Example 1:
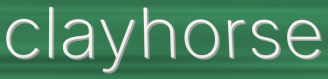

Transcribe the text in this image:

clayhorse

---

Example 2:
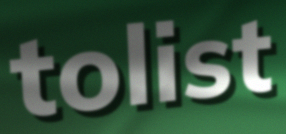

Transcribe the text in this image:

tolist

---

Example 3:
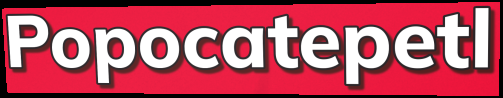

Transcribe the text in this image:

Popocatepetl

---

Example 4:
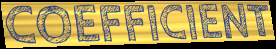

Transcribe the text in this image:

COEFFICIENT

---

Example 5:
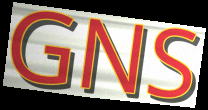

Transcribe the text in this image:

GNS